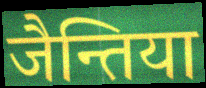
जैन्तिया